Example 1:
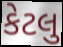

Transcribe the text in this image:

કેટલુ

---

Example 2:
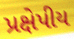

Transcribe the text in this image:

પ્રક્ષેપીય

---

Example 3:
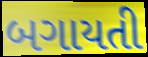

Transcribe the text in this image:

બગાયતી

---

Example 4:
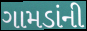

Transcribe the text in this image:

ગામડાંની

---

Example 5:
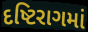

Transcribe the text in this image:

દષ્ટિરાગમાં